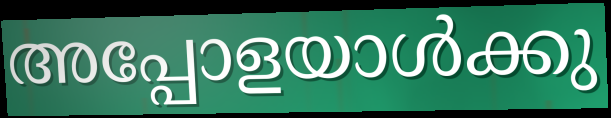
അപ്പോളയാൾക്കു